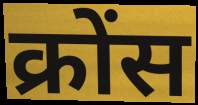
क्रोंस